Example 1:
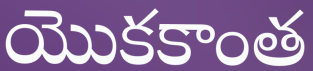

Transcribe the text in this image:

యొకకాంత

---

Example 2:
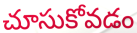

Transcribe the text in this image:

చూసుకోవడం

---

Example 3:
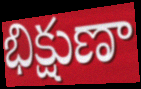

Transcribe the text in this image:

భిక్షుణా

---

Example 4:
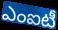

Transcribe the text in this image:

ఎంఐటీ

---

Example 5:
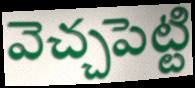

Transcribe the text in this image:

వెచ్చపెట్టి